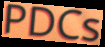
PDCs